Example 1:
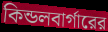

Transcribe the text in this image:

কিন্ডলবার্গারের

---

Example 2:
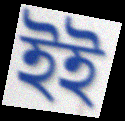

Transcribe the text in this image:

ইই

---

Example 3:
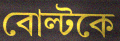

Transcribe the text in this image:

বোল্টকে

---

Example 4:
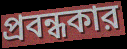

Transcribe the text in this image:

প্রবন্ধকার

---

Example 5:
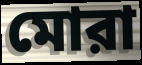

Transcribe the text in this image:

মোরা